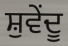
ਸ਼ੁਵੇਂਦੂ